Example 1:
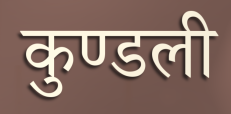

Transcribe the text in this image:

कुण्डली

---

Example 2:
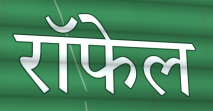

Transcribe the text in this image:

रॉफेल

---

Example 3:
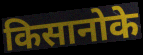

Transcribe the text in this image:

किसानोके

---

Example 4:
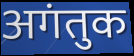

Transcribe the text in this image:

अगंतुक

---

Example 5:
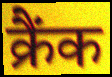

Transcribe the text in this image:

क्रैंक